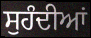
ਸੁਹੰਦੀਆਂ